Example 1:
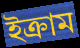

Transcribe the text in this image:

ইক্ৰাম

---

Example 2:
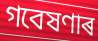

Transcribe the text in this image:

গবেষণাৰ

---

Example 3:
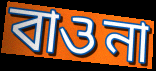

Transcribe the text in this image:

বাওনা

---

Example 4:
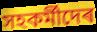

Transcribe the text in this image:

সহকৰ্মীদেৰ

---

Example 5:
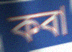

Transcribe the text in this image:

কবা